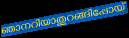
ഞാനറിയാതുറങ്ങിപ്പോയ്